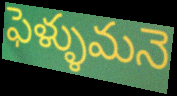
ఫెళ్ళుమనె